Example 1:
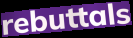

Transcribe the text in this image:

rebuttals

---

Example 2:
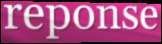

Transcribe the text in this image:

reponse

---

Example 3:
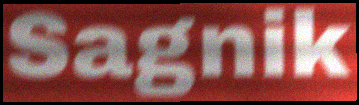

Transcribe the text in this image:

Sagnik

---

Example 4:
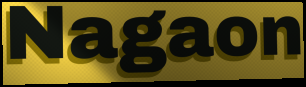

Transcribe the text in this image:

Nagaon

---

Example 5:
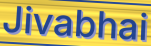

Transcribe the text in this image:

Jivabhai